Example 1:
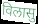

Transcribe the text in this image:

विलासु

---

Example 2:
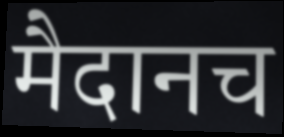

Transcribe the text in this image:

मैदानच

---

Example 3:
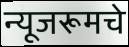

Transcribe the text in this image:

न्यूजरूमचे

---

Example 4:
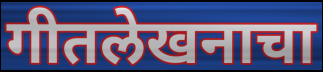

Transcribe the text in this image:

गीतलेखनाचा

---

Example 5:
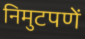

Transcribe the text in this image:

निमुटपणें